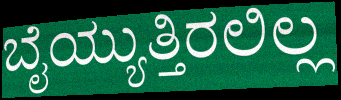
ಬೈಯ್ಯುತ್ತಿರಲಿಲ್ಲ